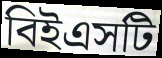
বিইএসটি